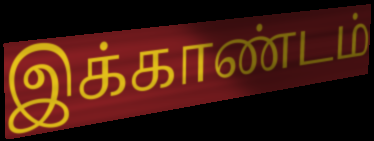
இக்காண்டம்